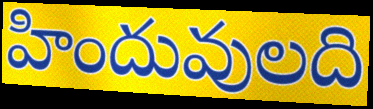
హిందువులది